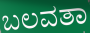
ಬಲವತಾ